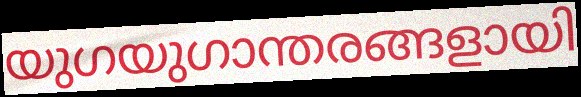
യുഗയുഗാന്തരങ്ങളായി